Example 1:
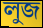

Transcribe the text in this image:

লুজ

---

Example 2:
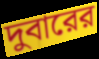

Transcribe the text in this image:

দুবারের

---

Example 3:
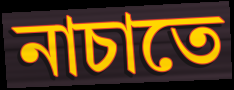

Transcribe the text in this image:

নাচাতে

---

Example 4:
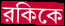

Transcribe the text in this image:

রকিকে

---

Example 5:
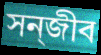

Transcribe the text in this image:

সন্জীব